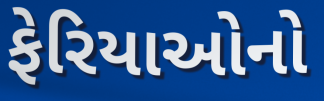
ફેરિયાઓનો